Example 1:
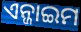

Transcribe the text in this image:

ଏନ୍ଜାଇମ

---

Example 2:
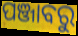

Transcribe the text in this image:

ପଞ୍ଜାବରୁ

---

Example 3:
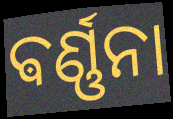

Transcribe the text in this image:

ଵର୍ଣ୍ଣନା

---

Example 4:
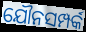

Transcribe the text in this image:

ଯୌନସମ୍ପର୍କ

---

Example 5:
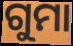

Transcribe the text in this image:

ଗୁମା